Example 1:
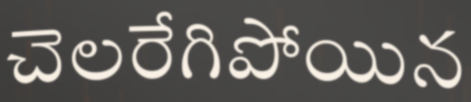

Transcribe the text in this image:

చెలరేగిపోయిన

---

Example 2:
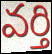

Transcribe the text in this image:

వర్తి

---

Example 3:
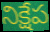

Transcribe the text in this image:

నిక్షేప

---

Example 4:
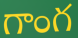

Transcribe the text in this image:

గాంగ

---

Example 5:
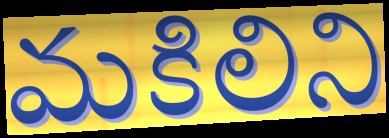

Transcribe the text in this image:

మకిలిని